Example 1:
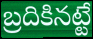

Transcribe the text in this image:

బ్రదికినట్టే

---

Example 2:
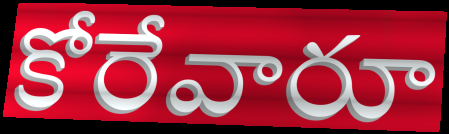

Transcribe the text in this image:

కోరేవారూ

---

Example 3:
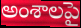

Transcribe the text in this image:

అంశాలపై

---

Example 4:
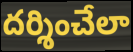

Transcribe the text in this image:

దర్శించేలా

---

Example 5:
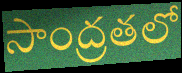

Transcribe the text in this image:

సాంద్రతలో